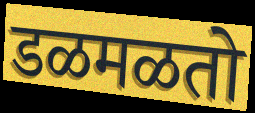
डळमळतो